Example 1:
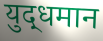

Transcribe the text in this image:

युद्धमान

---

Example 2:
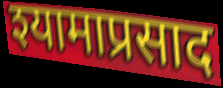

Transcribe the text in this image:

श्यामाप्रसाद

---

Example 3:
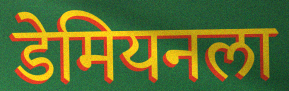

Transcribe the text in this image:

डेमियनला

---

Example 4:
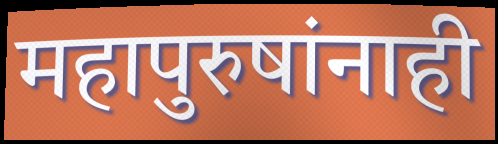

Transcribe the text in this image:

महापुरुषांनाही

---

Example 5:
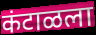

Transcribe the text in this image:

कंटाळला